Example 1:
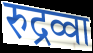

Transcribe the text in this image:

रुद्रव्वा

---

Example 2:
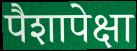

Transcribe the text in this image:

पैशापेक्षा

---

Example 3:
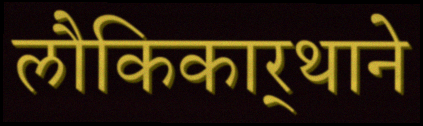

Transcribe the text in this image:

लौकिकार्थाने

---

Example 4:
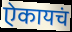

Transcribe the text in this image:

ऐकायचं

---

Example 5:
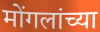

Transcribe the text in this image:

मोंगलांच्या